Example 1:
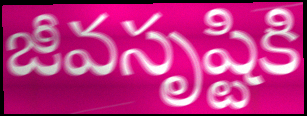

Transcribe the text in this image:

జీవసృష్టికి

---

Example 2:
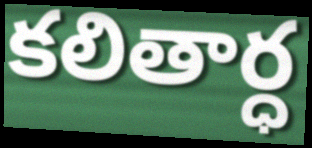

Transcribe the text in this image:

కలితార్ధ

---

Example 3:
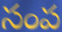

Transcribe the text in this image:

సంప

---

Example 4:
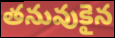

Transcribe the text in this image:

తనువుకైన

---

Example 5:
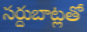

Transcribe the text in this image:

సర్దుబాట్లతో